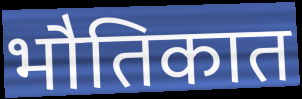
भौतिकात